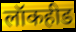
लॉकहीड